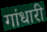
गांधारी